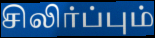
சிலிர்ப்பும்